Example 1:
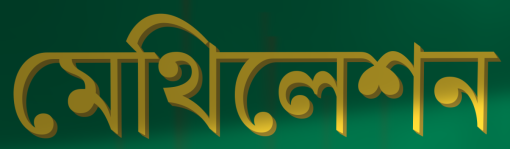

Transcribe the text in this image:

মেথিলেশন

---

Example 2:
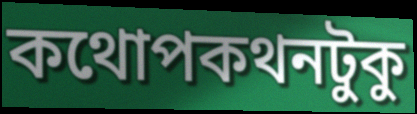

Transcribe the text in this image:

কথোপকথনটুকু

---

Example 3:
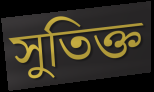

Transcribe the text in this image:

সুতিক্ত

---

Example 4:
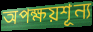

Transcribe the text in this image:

অপক্ষয়শূন্য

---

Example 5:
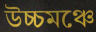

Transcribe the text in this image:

উচ্চমঞ্চে